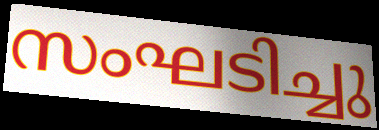
സംഘടിച്ചു